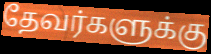
தேவர்களுக்கு